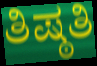
ತಿಷ್ಠತಿ